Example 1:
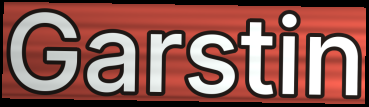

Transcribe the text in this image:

Garstin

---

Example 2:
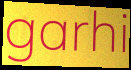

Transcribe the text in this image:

garhi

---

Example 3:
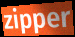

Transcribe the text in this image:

zipper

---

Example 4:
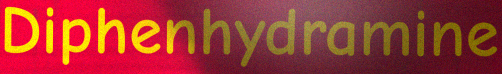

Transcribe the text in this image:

Diphenhydramine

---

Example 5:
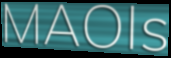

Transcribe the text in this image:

MAOIs